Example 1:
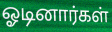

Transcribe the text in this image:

ஓடினார்கள்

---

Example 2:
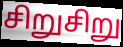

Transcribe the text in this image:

சிறுசிறு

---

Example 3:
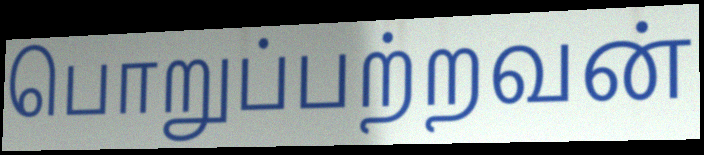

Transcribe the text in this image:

பொறுப்பற்றவன்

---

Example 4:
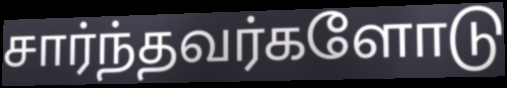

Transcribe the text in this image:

சார்ந்தவர்களோடு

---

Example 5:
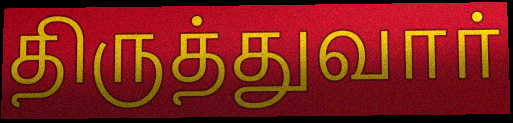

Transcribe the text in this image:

திருத்துவார்